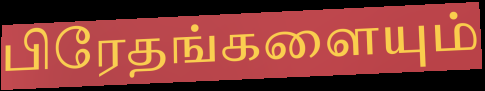
பிரேதங்களையும்